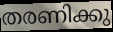
തരണിക്കു